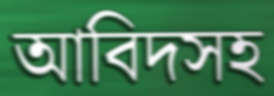
আবিদসহ